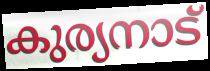
കുര്യനാട്